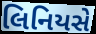
લિનિયસે